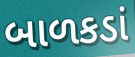
બાળકડાં